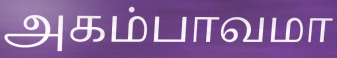
அகம்பாவமா